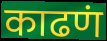
काढणं